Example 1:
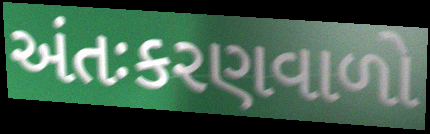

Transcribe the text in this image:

અંતઃકરણવાળો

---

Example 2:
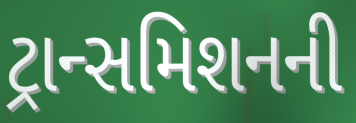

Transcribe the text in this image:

ટ્રાન્સમિશનની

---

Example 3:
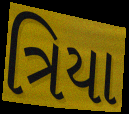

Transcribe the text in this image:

ત્રિયા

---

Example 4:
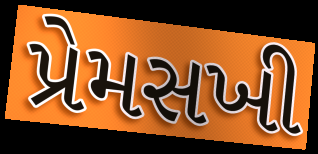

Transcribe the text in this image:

પ્રેમસખી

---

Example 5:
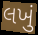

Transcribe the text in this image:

લખું